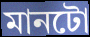
মানটো